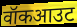
वॉकआउट